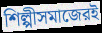
শিল্পীসমাজেরই